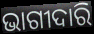
ଭାଗୀଦାରି